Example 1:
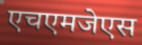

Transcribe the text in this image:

एचएमजेएस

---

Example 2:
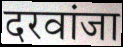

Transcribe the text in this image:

दरवांजा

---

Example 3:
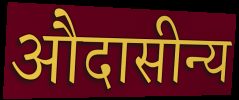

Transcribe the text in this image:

औदासीन्य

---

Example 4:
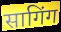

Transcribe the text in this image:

सागिंग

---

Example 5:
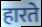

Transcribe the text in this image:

हारते